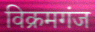
विक्रमगंज